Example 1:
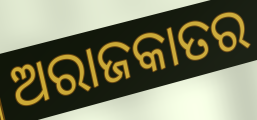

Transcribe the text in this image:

ଅରାଜକାତର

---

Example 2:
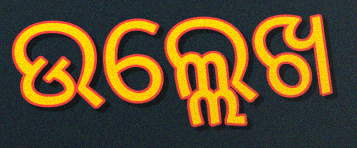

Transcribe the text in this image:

ଉଲ୍ଲେଖ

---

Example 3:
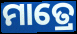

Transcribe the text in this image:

ମାତ୍ରେ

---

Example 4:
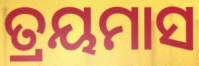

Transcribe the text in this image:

ତ୍ରୟମାସ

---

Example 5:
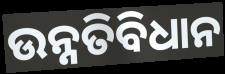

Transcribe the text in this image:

ଉନ୍ନତିବିଧାନ